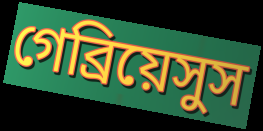
গেব্রিয়েসুস